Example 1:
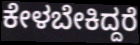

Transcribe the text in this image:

ಕೇಳಬೇಕಿದ್ದರೆ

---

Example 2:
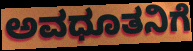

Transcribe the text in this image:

ಅವಧೂತನಿಗೆ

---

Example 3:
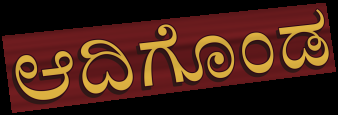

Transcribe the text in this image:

ಆದಿಗೊಂಡ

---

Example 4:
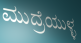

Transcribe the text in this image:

ಮುದ್ರೆಯುಳ್ಳ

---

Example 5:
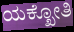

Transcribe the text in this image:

ಯಕ್ಖೋತಿ